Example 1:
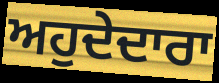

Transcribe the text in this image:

ਅਹੁਦੇਦਾਰਾ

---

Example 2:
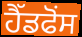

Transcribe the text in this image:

ਹੈੱਡਫੋਂਸ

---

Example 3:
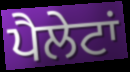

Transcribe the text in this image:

ਪੈਲੇਟਾਂ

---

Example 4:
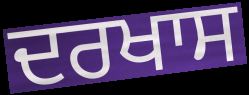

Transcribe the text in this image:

ਦਰਖਾਸ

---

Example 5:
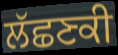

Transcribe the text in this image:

ਲੱਛਣਕੀ